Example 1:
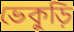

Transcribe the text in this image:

ভেকুড়ি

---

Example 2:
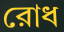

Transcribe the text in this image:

রোধ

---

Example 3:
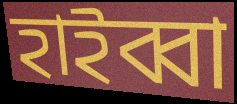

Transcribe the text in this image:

হাইব্বা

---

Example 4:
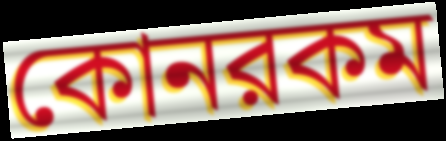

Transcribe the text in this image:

কোনরকম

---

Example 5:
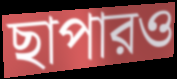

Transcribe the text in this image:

ছাপারও